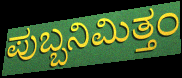
ಪುಬ್ಬನಿಮಿತ್ತಂ